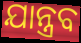
ଯାନ୍ତ୍ରବ